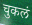
चुकलं